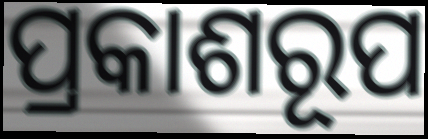
ପ୍ରକାଶରୂପ